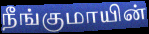
நீங்குமாயின்